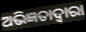
ଅଭିଜ୍ଞତାଦ୍ଵାରା